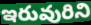
ఇరువురిని